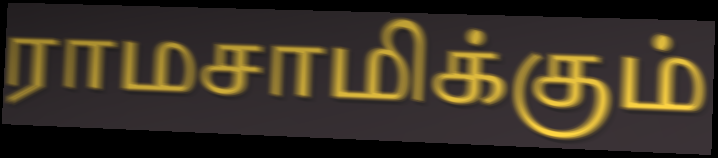
ராமசாமிக்கும்